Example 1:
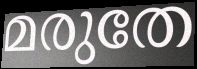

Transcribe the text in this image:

മരുതേ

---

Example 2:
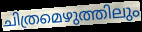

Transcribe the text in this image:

ചിത്രമെഴുത്തിലും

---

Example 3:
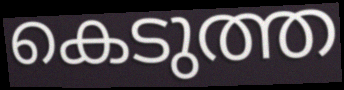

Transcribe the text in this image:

കെടുത്ത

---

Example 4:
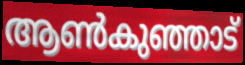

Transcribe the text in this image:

ആൺകുഞ്ഞാട്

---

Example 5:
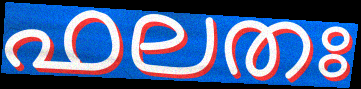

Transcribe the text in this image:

ഫലതഃ